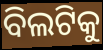
ବିଲଟିକୁ